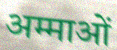
अम्माओं